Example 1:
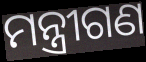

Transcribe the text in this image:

ମନ୍ତ୍ରୀଗଣ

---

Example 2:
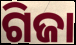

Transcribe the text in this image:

ଗିଜା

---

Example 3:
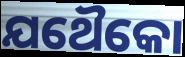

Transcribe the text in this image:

ଯଥୈକୋ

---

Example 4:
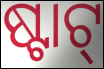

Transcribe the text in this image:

ଷ୍ଟାଟ୍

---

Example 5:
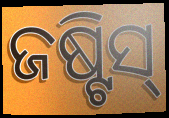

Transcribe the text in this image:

ଜଷ୍ଟିସ୍